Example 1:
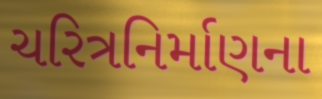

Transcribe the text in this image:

ચરિત્રનિર્માણના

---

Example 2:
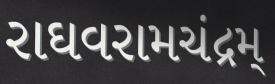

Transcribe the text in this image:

રાઘવરામચંદ્રમ્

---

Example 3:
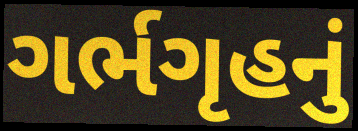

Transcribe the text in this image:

ગર્ભગૃહનું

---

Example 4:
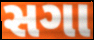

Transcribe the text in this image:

સગા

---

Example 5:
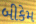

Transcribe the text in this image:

બીકેમ